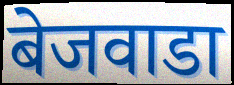
बेजवाडा